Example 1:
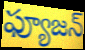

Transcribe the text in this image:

ఫ్యూజన్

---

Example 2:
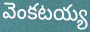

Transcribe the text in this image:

వెంకటయ్య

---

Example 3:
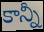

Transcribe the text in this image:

కాన్నీ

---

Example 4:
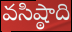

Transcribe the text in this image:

వసిష్ఠాది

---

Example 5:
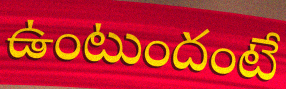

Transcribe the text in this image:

ఉంటుందంటే